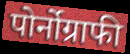
पोर्नोग्राफी